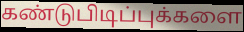
கண்டுபிடிப்புக்களை